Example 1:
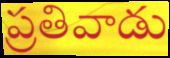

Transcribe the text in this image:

ప్రతివాడు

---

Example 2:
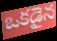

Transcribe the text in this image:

ఒకడైన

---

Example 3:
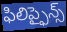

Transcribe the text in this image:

ఫిలిప్ఫైన్స్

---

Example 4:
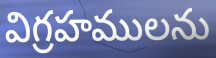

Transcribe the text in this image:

విగ్రహములను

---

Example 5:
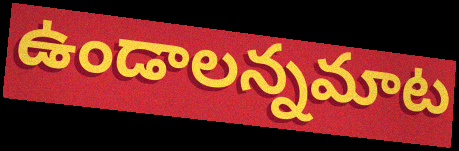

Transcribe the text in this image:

ఉండాలన్నమాట